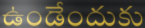
ఉండేందుకు